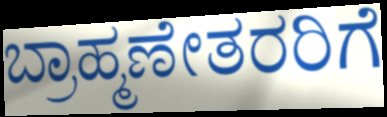
ಬ್ರಾಹ್ಮಣೇತರರಿಗೆ